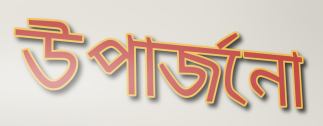
উপাৰ্জনো